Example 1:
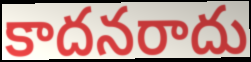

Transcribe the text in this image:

కాదనరాదు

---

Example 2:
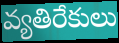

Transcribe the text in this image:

వ్యతిరేకులు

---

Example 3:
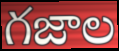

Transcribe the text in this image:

గజాల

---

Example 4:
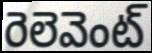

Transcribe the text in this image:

రెలెవెంట్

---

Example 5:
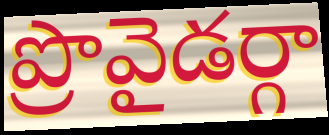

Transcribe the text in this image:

ప్రొవైడర్గా